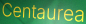
Centaurea